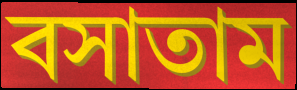
বসাতাম